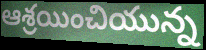
ఆశ్రయించియున్న